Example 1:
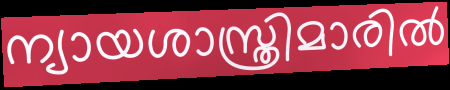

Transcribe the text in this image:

ന്യായശാസ്ത്രിമാരിൽ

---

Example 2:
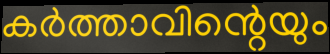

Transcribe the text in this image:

കർത്താവിന്റെയും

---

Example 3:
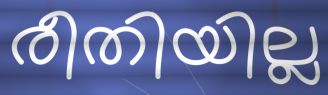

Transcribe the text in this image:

രീതിയില്ല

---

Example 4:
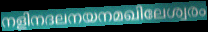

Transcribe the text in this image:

നളിനദലനയനമഖിലേശ്വരം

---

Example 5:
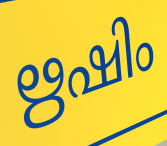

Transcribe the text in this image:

ഋഷിം